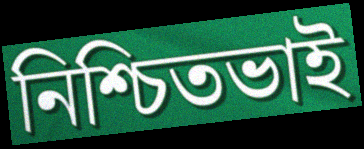
নিশ্চিতভাই